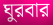
ঘুরবার